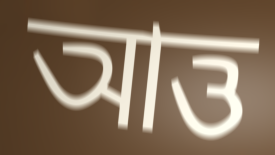
আত্ত